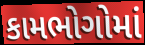
કામભોગોમાં